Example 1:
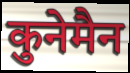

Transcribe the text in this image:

कुनेमैन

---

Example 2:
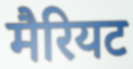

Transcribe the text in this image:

मैरियट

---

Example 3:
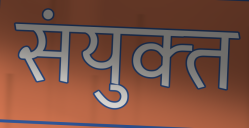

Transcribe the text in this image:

संयुक्‍त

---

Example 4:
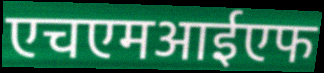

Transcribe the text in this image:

एचएमआईएफ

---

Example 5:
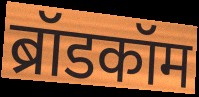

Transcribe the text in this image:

ब्रॉडकॉम